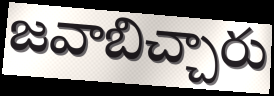
జవాబిచ్చారు